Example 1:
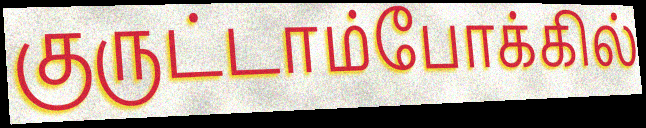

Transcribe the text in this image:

குருட்டாம்போக்கில்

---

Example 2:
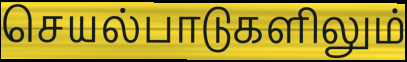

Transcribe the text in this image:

செயல்பாடுகளிலும்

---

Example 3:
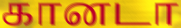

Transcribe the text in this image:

கானடா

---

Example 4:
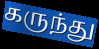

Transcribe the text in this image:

கருந்து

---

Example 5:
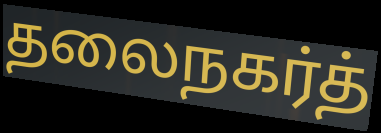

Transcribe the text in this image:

தலைநகர்த்